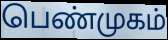
பெண்முகம்